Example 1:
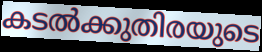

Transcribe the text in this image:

കടൽക്കുതിരയുടെ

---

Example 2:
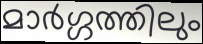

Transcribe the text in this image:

മാർഗ്ഗത്തിലും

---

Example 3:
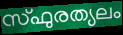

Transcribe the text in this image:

സ്ഫുരത്യലം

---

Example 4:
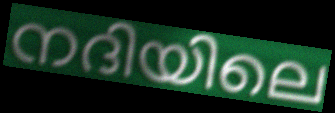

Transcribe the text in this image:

നദിയിലെ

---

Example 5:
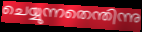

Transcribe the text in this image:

ചെയ്യുന്നതെന്തിന്നു